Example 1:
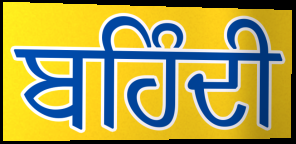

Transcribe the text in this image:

ਬਹਿੰਦੀ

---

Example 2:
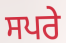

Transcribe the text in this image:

ਸਪਰੇ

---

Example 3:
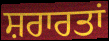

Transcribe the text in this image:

ਸ਼ਰਾਰਤਾਂ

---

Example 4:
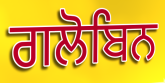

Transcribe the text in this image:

ਗਲੋਬਿਨ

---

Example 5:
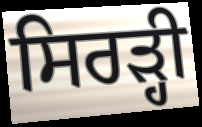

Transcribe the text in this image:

ਸਿਰੜ੍ਹੀ